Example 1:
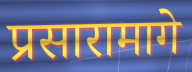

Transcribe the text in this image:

प्रसारामागे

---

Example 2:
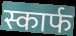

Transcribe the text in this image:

स्कार्फ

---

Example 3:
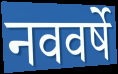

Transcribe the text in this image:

नववर्षे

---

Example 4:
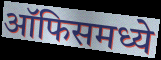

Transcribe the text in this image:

ऑफिसमध्ये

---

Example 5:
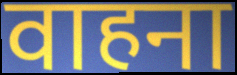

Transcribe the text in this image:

वाहना